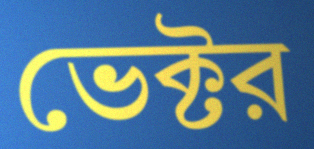
ভেক্টর